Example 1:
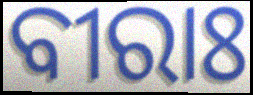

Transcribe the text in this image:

ବୀରାଃ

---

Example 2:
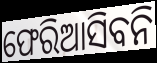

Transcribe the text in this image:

ଫେରିଆସିବନି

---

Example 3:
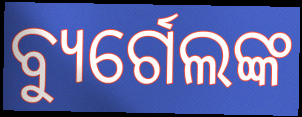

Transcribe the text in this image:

ବ୍ୟୁର୍ଗେଲଙ୍କ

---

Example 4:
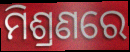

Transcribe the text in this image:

ମିଶ୍ରଣରେ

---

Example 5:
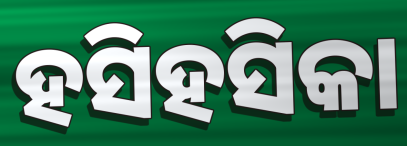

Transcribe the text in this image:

ହସିହସିକା